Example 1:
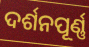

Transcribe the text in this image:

ଦର୍ଶନପୂର୍ଣ୍ଣ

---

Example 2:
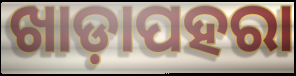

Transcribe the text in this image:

ଖାଡ଼ାପହରା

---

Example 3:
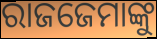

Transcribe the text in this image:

ରାଜଜେମାଙ୍କୁ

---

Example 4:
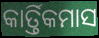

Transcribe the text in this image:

କାର୍ତ୍ତିକମାସ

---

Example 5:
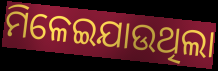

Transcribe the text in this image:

ମିଳେଇଯାଉଥିଲା